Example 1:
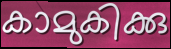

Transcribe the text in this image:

കാമുകിക്കു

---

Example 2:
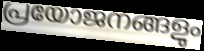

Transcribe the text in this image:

പ്രയോജനങ്ങളും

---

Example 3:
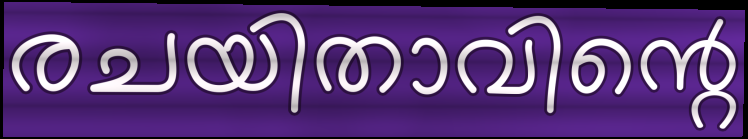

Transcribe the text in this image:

രചയിതാവിന്റെ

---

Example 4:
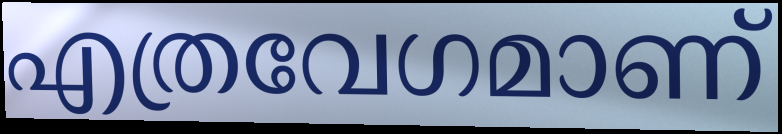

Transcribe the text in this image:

എത്രവേഗമാണ്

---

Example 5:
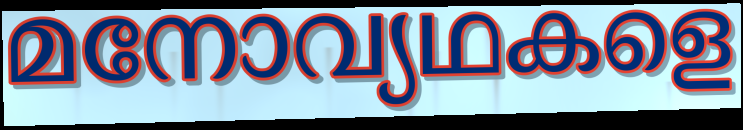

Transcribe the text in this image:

മനോവ്യഥകളെ